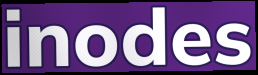
inodes